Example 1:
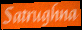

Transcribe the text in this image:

Satrughna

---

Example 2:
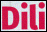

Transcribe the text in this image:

Dili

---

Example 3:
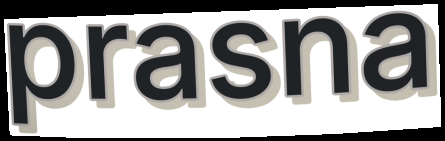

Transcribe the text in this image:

prasna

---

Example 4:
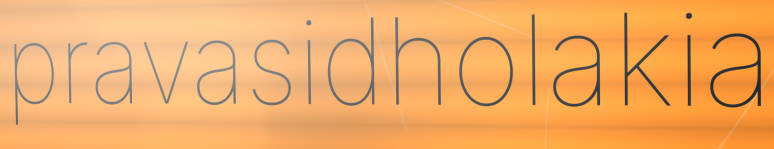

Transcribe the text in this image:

pravasidholakia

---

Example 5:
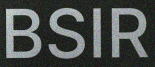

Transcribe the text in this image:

BSIR